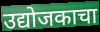
उद्योजकाचा